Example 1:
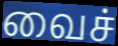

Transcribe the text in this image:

வைச்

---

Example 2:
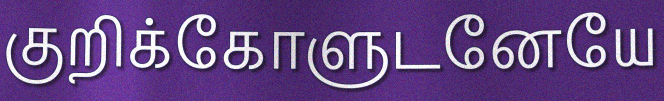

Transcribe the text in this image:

குறிக்கோளுடனேயே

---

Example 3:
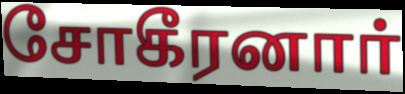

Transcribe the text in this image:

சோகீரனார்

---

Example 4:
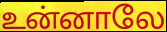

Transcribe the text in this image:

உன்னாலே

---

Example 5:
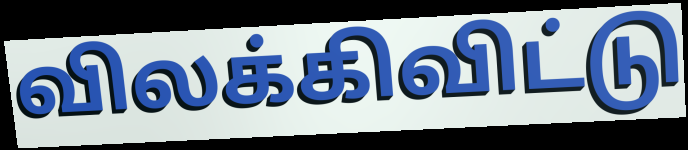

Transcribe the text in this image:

விலக்கிவிட்டு